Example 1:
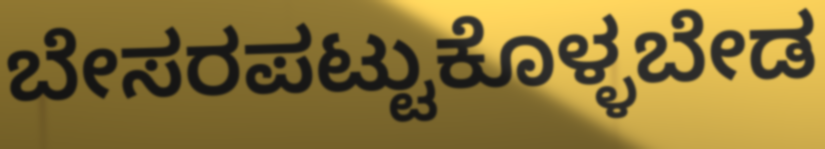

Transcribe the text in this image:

ಬೇಸರಪಟ್ಟುಕೊಳ್ಳಬೇಡ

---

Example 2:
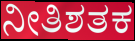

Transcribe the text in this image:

ನೀತಿಶತಕ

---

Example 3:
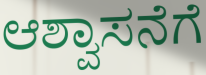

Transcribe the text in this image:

ಆಶ್ವಾಸನೆಗೆ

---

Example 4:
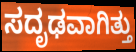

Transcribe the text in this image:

ಸದೃಢವಾಗಿತ್ತು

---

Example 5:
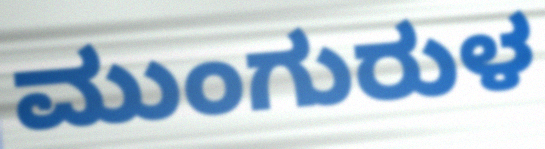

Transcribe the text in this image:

ಮುಂಗುರುಳ